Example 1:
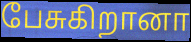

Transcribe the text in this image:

பேசுகிறானா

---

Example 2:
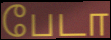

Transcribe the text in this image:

பேடா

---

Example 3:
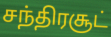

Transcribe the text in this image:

சந்திரசூட்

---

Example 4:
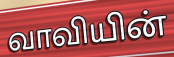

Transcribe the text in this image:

வாவியின்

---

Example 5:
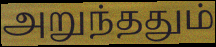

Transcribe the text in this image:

அறுந்ததும்